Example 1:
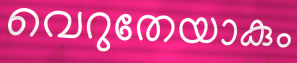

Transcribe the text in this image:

വെറുതേയാകും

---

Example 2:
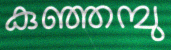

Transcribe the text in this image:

കുഞ്ഞമ്പു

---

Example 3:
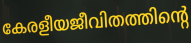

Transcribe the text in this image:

കേരളീയജീവിതത്തിന്റെ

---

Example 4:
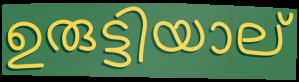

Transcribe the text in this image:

ഉരുട്ടിയാല്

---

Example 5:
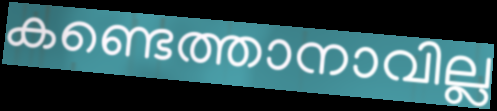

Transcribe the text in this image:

കണ്ടെത്താനാവില്ല